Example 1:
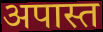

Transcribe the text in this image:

अपास्त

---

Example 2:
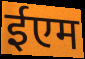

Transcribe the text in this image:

ईएम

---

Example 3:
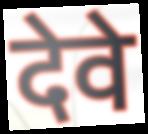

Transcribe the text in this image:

देवे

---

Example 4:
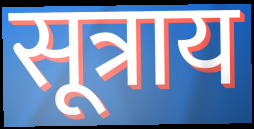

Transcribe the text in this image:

सूत्राय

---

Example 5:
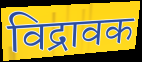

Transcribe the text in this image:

विद्रावक